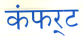
कंफर्ट